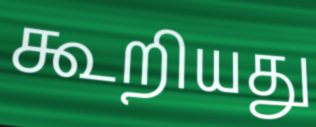
கூறியது